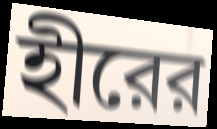
হীরের